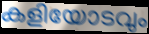
കളിയോടവും